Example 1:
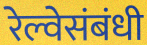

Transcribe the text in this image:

रेल्वेसंबंधी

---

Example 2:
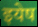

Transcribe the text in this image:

इयेष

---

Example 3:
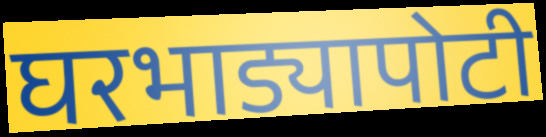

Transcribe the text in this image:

घरभाड्यापोटी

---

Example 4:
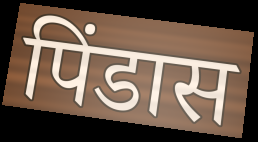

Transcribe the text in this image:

पिंडास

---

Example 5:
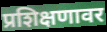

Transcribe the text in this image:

प्रशिक्षणावर